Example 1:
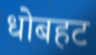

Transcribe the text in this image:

धोबहट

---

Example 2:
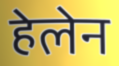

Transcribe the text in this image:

हेलेन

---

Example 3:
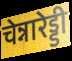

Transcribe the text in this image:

चेन्नारेड्डी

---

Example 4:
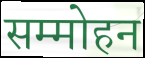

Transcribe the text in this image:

सम्मोहन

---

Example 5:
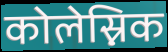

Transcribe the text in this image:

कोलेस्निक